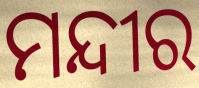
ମନ୍ଦୀର